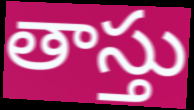
తాస్తు